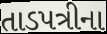
તાડપત્રીના